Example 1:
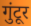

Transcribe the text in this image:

गुंटूर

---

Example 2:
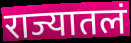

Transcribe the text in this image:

राज्यातलं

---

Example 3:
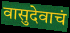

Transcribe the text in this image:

वासुदेवाचं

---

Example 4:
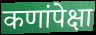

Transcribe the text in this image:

कणांपेक्षा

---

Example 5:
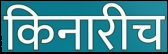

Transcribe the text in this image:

किनारीच